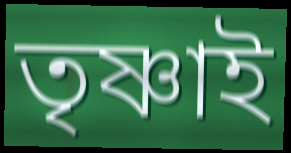
তৃষ্ণাই